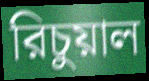
রিচুয়াল